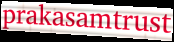
prakasamtrust